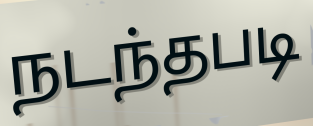
நடந்தபடி